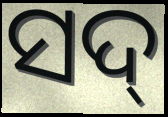
ସଦ୍